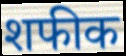
शफीक